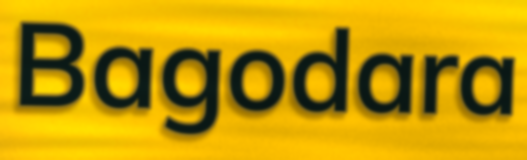
Bagodara